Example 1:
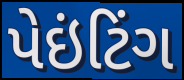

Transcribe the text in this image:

પેઇંટિંગ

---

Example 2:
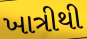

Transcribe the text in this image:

ખાત્રીથી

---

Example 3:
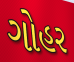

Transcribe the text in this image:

ગોહર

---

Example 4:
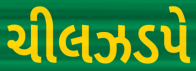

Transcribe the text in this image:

ચીલઝડપે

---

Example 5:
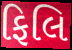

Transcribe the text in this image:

ફિલિ